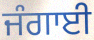
ਜੰਗਾਈ